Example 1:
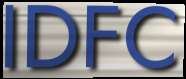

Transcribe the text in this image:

IDFC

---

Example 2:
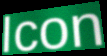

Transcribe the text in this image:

Icon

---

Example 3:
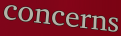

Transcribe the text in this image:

concerns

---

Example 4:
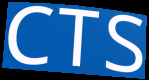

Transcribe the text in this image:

CTS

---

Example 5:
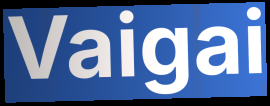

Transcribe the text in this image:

Vaigai